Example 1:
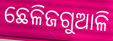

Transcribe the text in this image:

ଛେଳିଜଗୁଆଳି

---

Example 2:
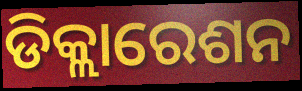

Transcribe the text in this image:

ଡିକ୍ଲାରେଶନ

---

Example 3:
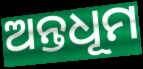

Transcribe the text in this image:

ଅନ୍ତଧୂମ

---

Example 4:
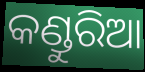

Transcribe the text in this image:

କଣ୍ଡୁରିଆ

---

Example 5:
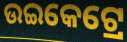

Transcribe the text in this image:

ଉଇକେଟ୍ରେ